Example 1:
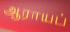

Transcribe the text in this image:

ஆராயப்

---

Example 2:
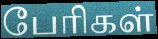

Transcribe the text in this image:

பேரிகள்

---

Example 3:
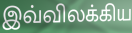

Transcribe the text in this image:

இவ்விலக்கிய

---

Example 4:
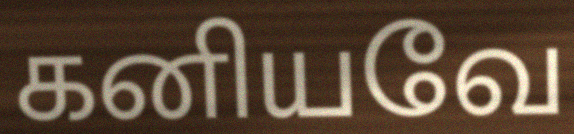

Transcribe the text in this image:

கனியவே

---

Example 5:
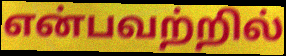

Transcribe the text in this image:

என்பவற்றில்